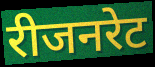
रीजनरेट